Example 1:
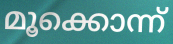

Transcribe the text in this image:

മൂക്കൊന്ന്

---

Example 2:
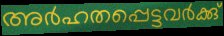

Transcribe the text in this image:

അർഹതപ്പെട്ടവർക്കു്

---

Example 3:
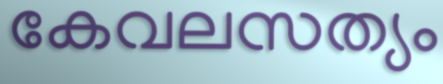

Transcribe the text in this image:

കേവലസത്യം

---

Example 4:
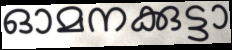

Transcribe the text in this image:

ഓമനക്കുട്ടാ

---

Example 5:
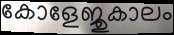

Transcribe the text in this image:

കോളേജുകാലം